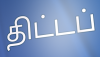
திட்டப்